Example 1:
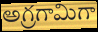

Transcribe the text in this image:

అగ్రగామిగా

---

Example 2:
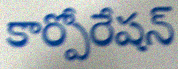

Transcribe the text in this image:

కార్పోరేషన్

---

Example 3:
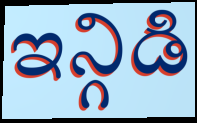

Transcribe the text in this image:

ఇన్గిడి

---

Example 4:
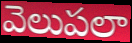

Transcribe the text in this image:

వెలుపలా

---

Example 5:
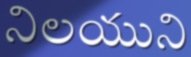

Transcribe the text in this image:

నిలయుని